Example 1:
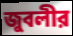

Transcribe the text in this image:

জুবলীর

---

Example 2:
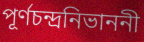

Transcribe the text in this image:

পূর্ণচন্দ্রনিভাননী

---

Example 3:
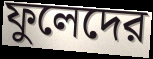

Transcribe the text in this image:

ফুলেদের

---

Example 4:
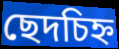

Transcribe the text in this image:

ছেদচিহ্ন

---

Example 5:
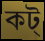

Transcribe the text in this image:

কট্